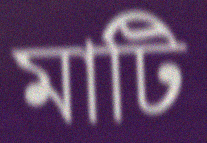
মাটি